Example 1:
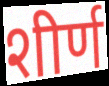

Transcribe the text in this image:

शीर्ण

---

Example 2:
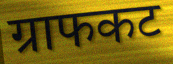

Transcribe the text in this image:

ग्राफकट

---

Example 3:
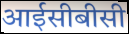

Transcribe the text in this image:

आईसीबीसी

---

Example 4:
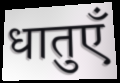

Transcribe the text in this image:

धातुएँ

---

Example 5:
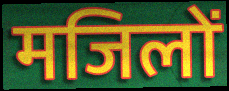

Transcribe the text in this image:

मजिलों